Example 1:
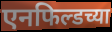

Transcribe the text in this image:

एनफिल्डच्या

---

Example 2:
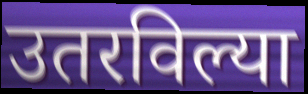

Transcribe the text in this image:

उतरविल्या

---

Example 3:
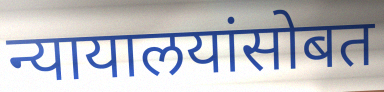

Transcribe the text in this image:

न्यायालयांसोबत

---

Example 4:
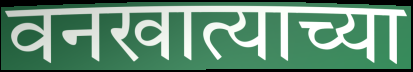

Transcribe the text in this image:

वनखात्याच्या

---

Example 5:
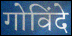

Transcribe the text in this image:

गोविंदे